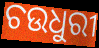
ଚଉଧୁରୀ